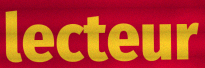
lecteur